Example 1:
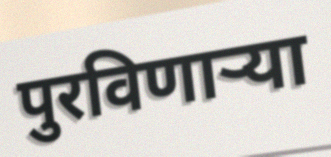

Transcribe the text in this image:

पुरविणार्‍या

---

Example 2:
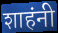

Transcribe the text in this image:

शाहंनी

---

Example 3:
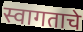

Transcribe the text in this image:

स्वागताचे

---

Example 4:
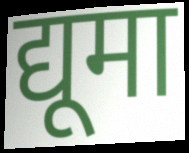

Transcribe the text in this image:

द्यूमा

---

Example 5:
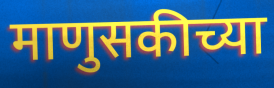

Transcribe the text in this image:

माणुसकीच्या